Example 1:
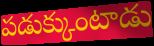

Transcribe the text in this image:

పడుక్కుంటాడు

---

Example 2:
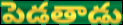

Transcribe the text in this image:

పెడతాడు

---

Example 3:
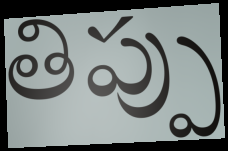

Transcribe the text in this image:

తిప్పు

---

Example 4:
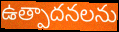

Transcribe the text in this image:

ఉత్పాదనలను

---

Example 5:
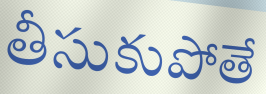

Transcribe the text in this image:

తీసుకుపోతే